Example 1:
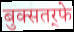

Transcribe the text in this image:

बुक्सतर्फे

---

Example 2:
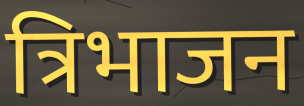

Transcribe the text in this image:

त्रिभाजन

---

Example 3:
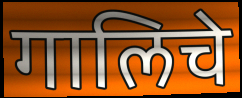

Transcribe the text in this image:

गालिचे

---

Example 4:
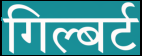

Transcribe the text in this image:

गिल्बर्ट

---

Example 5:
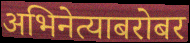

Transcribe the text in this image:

अभिनेत्याबरोबर